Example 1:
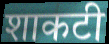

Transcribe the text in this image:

शाकटी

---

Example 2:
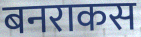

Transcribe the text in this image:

बनराकस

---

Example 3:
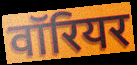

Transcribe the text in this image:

वॉरियर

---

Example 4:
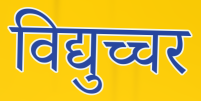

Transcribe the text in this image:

विद्युच्चर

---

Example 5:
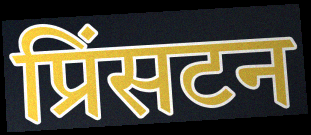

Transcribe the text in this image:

प्रिंसटन